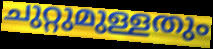
ചുറ്റുമുള്ളതും